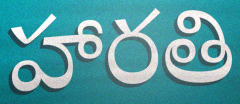
హారతి